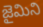
జైమిని